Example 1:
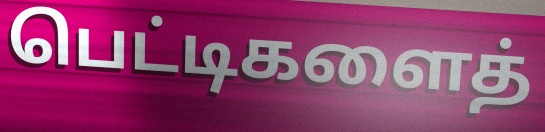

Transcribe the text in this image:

பெட்டிகளைத்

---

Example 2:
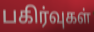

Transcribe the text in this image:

பகிர்வுகள்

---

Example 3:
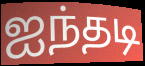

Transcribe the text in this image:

ஐந்தடி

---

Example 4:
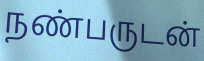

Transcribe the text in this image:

நண்பருடன்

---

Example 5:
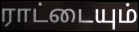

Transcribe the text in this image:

ராட்டையும்